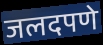
जलदपणे